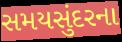
સમયસુંદરના